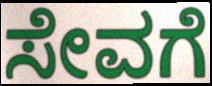
ಸೇವಗೆ